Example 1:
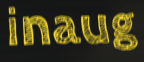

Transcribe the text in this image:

inaug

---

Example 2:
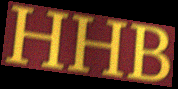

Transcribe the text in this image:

HHB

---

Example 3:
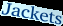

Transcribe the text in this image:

Jackets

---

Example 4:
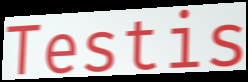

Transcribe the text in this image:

Testis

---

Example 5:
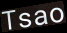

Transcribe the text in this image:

Tsao